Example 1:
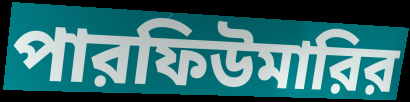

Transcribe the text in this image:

পারফিউমারির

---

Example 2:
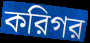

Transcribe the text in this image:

করিগর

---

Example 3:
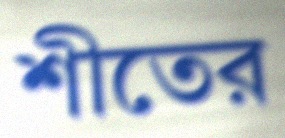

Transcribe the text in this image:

শীতের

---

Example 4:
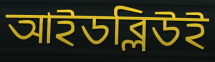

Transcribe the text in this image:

আইডব্লিউই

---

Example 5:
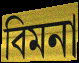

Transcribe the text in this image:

বিমনা